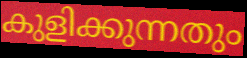
കുളിക്കുന്നതും